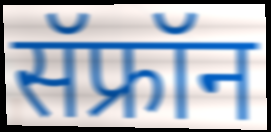
सॅफ्रॉन